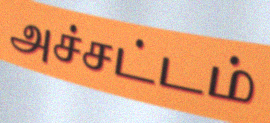
அச்சட்டம்